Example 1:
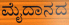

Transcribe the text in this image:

ಮೈದಾನದ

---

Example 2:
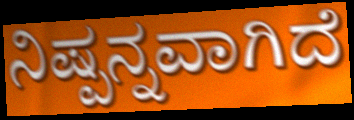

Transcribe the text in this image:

ನಿಷ್ಪನ್ನವಾಗಿದೆ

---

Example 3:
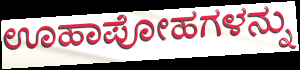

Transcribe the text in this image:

ಊಹಾಪೋಹಗಳನ್ನು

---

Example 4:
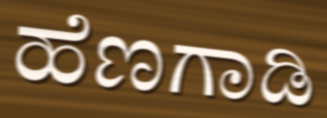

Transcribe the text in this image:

ಹೆಣಗಾಡಿ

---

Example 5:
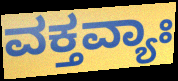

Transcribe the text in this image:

ವಕ್ತವ್ಯಾಃ